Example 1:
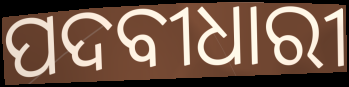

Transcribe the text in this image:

ପଦବୀଧାରୀ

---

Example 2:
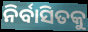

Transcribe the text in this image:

ନିର୍ବାସିତକୁ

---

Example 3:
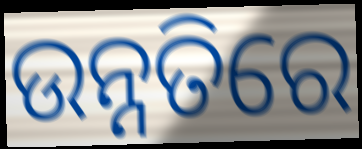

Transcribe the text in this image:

ଉନ୍ନତିରେ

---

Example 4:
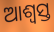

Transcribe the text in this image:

ଆଶ୍ୱସ୍ତ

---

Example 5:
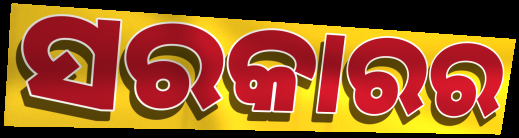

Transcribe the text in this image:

ସରକାରର